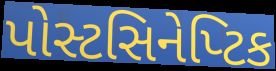
પોસ્ટસિનેપ્ટિક